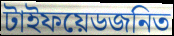
টাইফয়েডজনিত